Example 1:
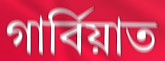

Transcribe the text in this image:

গার্বিয়াত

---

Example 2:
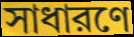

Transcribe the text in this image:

সাধারণে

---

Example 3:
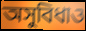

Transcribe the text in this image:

অসুবিধাও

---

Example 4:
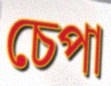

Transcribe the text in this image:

চেপা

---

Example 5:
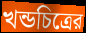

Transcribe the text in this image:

খন্ডচিত্রের